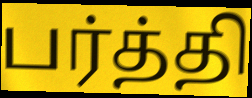
பர்த்தி